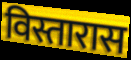
विस्तारास